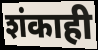
शंकाही